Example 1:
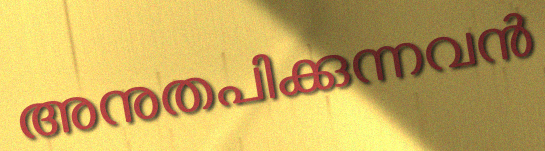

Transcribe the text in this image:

അനുതപിക്കുന്നവൻ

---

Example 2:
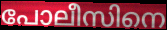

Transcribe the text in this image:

പോലീസിനെ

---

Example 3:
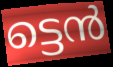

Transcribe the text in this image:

ട്ടെൻ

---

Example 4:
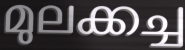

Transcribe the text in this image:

മുലക്കച്ച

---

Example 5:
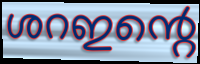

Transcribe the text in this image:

ശറഇന്റെ